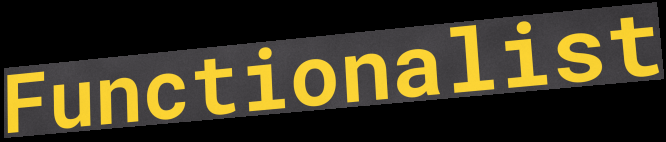
Functionalist